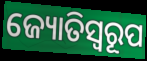
ଜ୍ୟୋତିସ୍ୱରୂପ